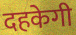
दहकेगी